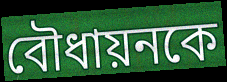
বৌধায়নকে